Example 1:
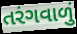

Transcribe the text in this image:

તરંગવાળું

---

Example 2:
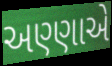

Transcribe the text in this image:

અણ્ણાએ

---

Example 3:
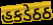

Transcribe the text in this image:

હકડેઠઠ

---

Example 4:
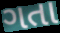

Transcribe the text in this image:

ગતા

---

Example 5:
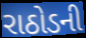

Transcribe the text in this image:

રાઠોડની